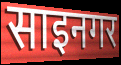
साइनगर